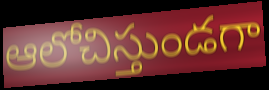
ఆలోచిస్తుండగా